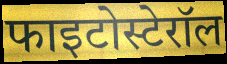
फाइटोस्टेरॉल